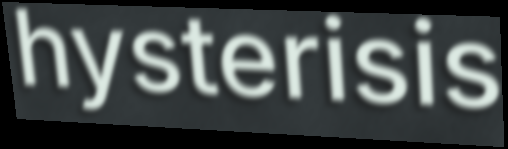
hysterisis